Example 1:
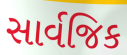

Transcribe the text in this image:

સાર્વજિક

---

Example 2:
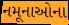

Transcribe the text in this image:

નમૂનાઓના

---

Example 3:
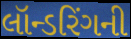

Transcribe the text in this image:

લૉન્ડરિંગની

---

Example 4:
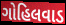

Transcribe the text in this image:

ગોહિલવાડ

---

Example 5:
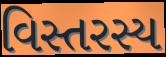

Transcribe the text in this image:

વિસ્તરસ્ય